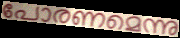
പോരണമെന്നു